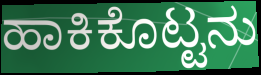
ಹಾಕಿಕೊಟ್ಟನು